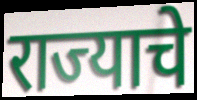
राज्याचे